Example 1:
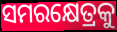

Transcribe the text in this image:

ସମରକ୍ଷେତ୍ରକୁ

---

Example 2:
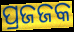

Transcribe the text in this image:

ପ୍ରଜଜକ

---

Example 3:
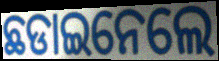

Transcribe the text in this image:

ଛଡାଇନେଲେ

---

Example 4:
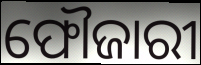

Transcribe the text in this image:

ଫୌଜାରୀ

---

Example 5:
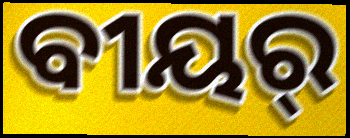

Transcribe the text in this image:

ବୀୟର୍